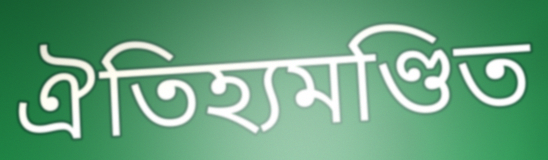
ঐতিহ্যমণ্ডিত